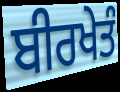
ਬੀਰਖੇਤੰ